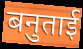
बनुताई